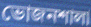
ভোজনশালা